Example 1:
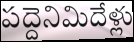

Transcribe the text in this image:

పద్దెనిమిదేళ్లు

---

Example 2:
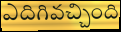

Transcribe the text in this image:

ఎదిగివచ్చింది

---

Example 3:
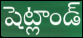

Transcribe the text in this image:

షెట్లాండ్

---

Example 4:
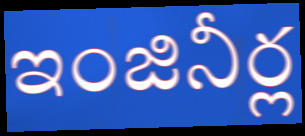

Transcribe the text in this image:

ఇంజినీర్ల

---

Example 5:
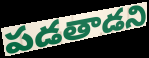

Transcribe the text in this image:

పడతాడని